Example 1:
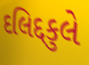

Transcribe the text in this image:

દલિદ્દકુલે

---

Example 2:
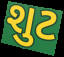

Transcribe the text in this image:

શુટ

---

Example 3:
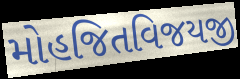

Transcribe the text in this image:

મોહજિતવિજયજી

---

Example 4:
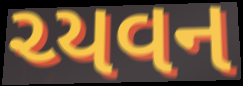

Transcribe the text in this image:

ચ્યવન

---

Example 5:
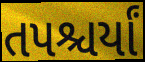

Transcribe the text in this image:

તપશ્ચર્યાં